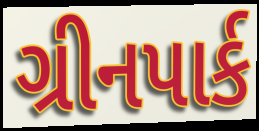
ગ્રીનપાર્ક